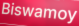
Biswamoy